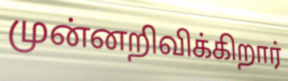
முன்னறிவிக்கிறார்